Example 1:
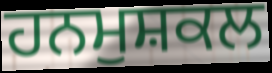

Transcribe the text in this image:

ਹਨਮੁਸ਼ਕਲ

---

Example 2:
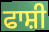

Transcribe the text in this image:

ਫਾਸ਼ੀ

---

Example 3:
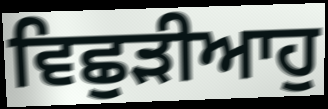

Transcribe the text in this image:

ਵਿਛੁੜੀਆਹੁ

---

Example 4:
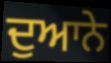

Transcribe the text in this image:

ਦੁਆਨੇ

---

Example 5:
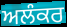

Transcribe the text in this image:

ਅਲੰਕਰ